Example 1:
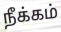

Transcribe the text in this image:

நீக்கம்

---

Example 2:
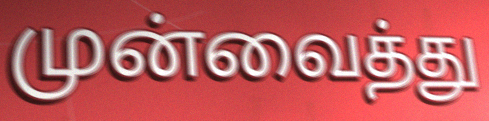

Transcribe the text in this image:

முன்வைத்து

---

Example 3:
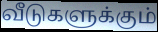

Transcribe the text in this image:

வீடுகளுக்கும்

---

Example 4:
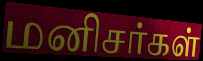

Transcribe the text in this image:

மனிசர்கள்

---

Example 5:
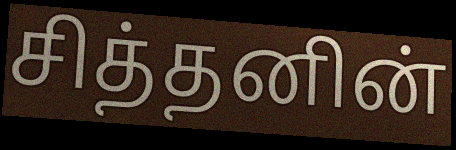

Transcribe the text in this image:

சித்தனின்